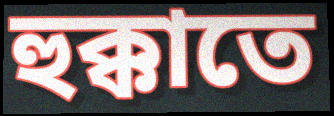
হুক্কাতে